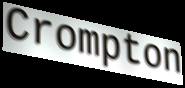
Crompton